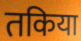
तकिया